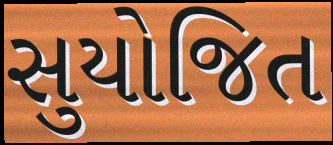
સુયોજિત